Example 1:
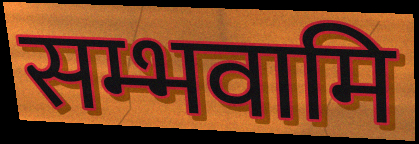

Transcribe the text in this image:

सम्भवामि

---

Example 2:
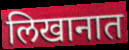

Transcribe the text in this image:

लिखानात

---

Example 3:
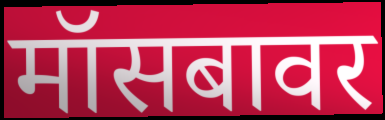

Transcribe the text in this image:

मॉसबावर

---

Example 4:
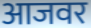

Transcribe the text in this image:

आजवर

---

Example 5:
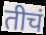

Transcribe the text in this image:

तीचं